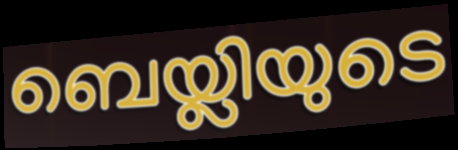
ബെയ്ലിയുടെ